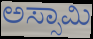
ಅಸ್ಸಾಮಿ